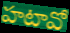
హటావో